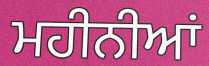
ਮਹੀਨੀਆਂ